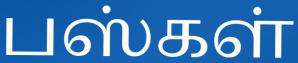
பஸ்கள்